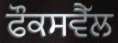
ਫੌਕਸਵੈੱਲ